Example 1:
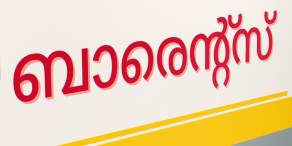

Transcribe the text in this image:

ബാരെന്റ്സ്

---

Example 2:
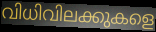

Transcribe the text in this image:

വിധിവിലക്കുകളെ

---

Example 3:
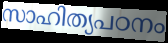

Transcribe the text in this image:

സാഹിത്യപഠനം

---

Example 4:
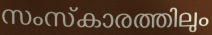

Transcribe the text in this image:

സംസ്‌കാരത്തിലും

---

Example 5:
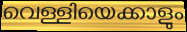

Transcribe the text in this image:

വെള്ളിയെക്കാളും